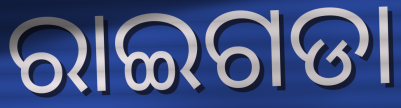
ରାଇଗଡା